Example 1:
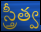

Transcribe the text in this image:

స్త్రీత్వ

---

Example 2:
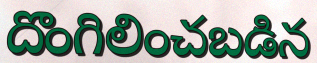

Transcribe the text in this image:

దొంగిలించబడిన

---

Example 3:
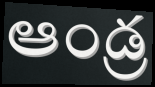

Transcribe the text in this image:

ఆండ్ర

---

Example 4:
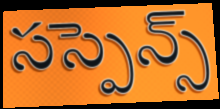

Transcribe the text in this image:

సస్పెన్స్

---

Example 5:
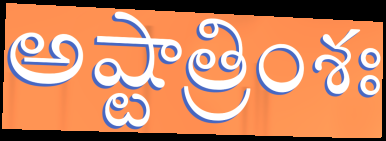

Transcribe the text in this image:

అష్టాత్రింశః